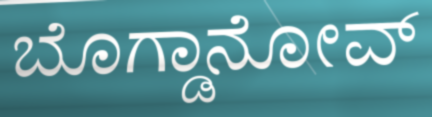
ಬೊಗ್ಡಾನೋವ್